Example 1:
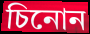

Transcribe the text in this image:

চিনোন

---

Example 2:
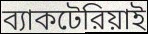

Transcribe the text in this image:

ব্যাকটেরিয়াই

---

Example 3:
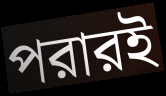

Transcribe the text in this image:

পরারই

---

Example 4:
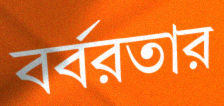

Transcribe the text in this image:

বর্বরতার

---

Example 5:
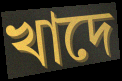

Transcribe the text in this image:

খাদে